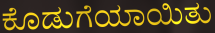
ಕೊಡುಗೆಯಾಯಿತು